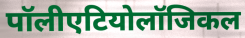
पॉलीएटियोलॉजिकल